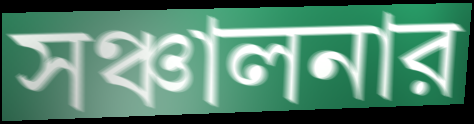
সঞ্চালনার